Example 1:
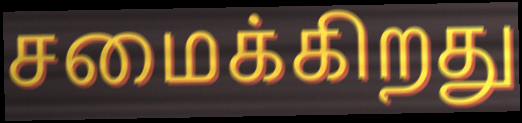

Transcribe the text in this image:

சமைக்கிறது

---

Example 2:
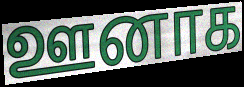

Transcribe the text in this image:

ஊனாக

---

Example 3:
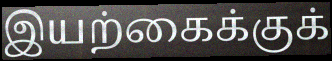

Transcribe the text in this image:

இயற்கைக்குக்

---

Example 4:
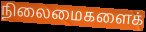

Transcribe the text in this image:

நிலைமைகளைக்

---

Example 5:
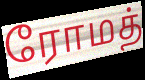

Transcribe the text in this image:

ரோமத்